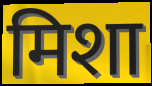
मिशा